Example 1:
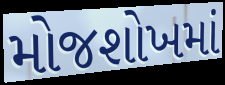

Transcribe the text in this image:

મોજશોખમાં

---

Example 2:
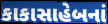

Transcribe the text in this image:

કાકાસાહેબનાં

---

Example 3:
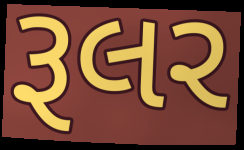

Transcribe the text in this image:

રૂલર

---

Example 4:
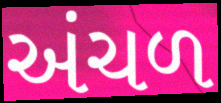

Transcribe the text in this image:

અંચળ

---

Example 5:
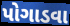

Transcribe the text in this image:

પોગાડવા